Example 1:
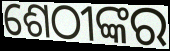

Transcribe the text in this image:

ଶେଠୀଙ୍କର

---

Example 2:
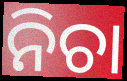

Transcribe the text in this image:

ନିଚା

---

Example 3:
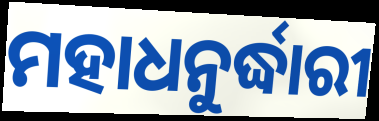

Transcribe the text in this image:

ମହାଧନୁର୍ଦ୍ଧାରୀ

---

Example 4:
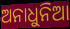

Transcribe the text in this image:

ଅନାଧୁନିଆ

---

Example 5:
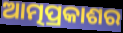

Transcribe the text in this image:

ଆତ୍ମପ୍ରକାଶର